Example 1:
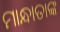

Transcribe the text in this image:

ମାନ୍ଧାତାଙ୍କ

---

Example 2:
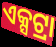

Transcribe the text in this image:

ଏକ୍ସଟ୍ରା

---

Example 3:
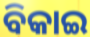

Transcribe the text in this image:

ବିକାଇ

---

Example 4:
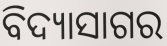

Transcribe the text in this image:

ବିଦ୍ୟାସାଗର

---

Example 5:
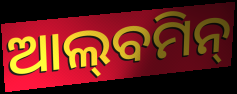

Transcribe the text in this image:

ଆଲ୍‌ବମିନ୍